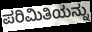
ಪರಿಮಿತಿಯನ್ನು